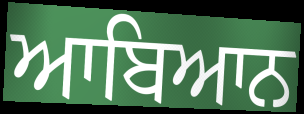
ਆਬਿਆਨ